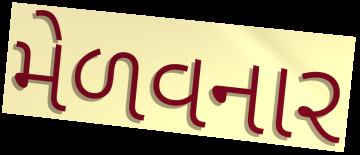
મેળવનાર